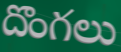
దొంగలు